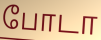
போடா